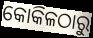
କୋକିଳଠାରୁ